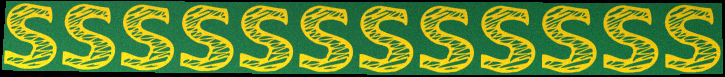
ssssssssssss